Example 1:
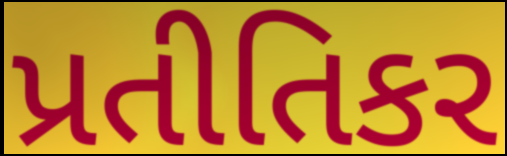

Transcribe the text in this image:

પ્રતીતિકર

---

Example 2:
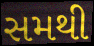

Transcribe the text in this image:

સમથી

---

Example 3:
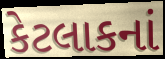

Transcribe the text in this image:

કેટલાકનાં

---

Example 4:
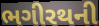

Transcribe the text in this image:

ભગીરથની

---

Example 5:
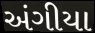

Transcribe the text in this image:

અંગીયા